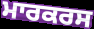
ਮਾਰਕਰਸ